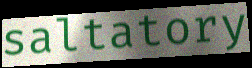
saltatory